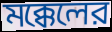
মক্কেলের